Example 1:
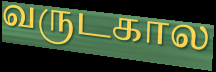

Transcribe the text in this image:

வருடகால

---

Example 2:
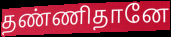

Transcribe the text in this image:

தண்ணிதானே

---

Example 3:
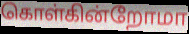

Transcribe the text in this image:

கொள்கின்றோமா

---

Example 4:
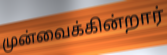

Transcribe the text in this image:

முன்வைக்கின்றார்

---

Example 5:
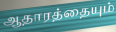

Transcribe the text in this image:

ஆதாரத்தையும்